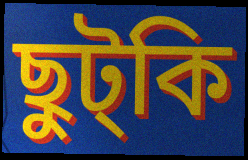
ছুট্কি